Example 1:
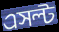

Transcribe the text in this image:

এসল্ট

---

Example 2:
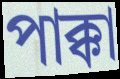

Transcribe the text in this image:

পাক্কা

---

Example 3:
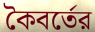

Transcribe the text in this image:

কৈবর্তের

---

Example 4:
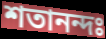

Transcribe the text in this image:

শতানন্দঃ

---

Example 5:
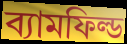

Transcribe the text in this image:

ব্যামফিল্ড